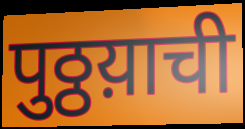
पुठ्ठय़ाची